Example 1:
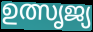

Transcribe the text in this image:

ഉത്സൃജ്യ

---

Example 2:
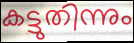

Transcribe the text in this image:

കട്ടുതിന്നും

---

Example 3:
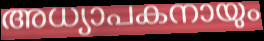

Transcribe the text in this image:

അധ്യാപകനായും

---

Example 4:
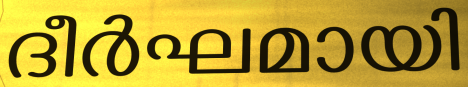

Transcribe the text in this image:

ദീർഘമായി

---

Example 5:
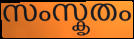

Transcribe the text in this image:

സംസ്കൃതം